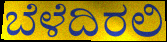
ಬೆಳೆದಿರಲಿ